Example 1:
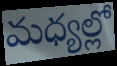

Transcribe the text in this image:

మధ్యల్లో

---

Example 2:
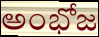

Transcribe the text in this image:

అంభోజ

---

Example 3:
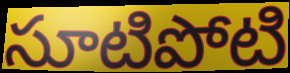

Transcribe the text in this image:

సూటిపోటి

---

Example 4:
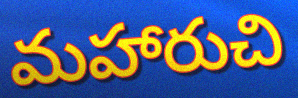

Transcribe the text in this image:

మహారుచి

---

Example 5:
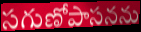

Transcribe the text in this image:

సగుణోపాసనను